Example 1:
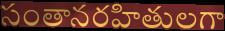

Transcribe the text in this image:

సంతానరహితులగా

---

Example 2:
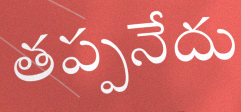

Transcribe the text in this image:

తప్పనేదు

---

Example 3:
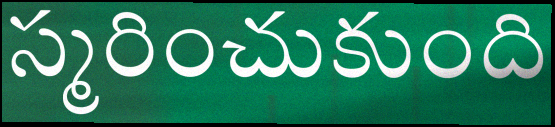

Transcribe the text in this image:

స్మరించుకుంది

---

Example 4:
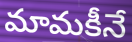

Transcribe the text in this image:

మామకీనే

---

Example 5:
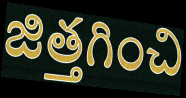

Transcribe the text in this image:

జిత్తగించి